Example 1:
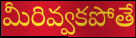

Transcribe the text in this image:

మీరివ్వకపోతే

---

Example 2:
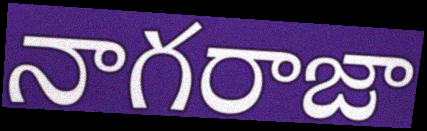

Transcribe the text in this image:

నాగరాజా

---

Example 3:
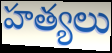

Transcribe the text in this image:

హత్యలు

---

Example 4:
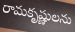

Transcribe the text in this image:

రామకృష్ణులను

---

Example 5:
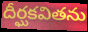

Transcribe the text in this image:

దీర్ఘకవితను